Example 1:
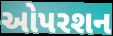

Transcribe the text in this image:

ઓપરશન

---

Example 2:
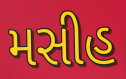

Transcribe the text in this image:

મસીહ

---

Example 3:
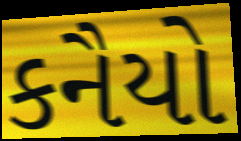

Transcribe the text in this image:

કનૈયો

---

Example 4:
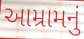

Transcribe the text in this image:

આમ્રામનું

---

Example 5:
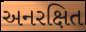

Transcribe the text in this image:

અનરક્ષિત